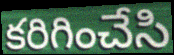
కరిగించేసి